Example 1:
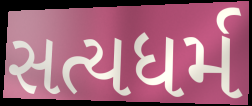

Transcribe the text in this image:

સત્યધર્મ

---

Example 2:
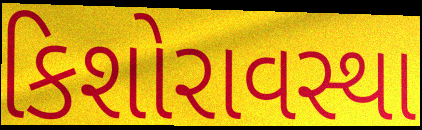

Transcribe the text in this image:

કિશોરાવસ્થા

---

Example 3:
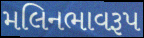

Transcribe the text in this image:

મલિનભાવરૂપ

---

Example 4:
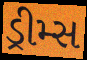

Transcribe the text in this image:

ડ્રીમ્સ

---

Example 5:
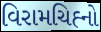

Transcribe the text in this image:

વિરામચિહ્‍નો